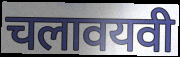
चलावयवी